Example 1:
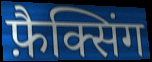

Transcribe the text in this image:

फ़ैक्सिंग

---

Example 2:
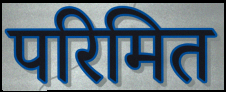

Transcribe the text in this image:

परिमित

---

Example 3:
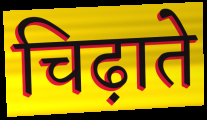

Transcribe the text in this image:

चिढ़ाते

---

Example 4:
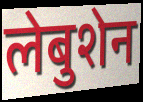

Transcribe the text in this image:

लेबुशेन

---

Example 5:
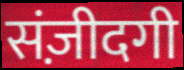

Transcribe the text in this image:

संज़ीदगी